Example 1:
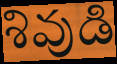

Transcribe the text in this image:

శివుడి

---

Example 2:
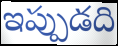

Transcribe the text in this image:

ఇప్పుడది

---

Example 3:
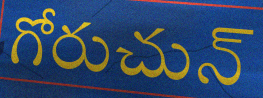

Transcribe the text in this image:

గోరుచున్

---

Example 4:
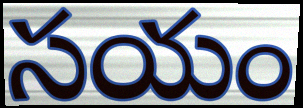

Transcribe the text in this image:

సయం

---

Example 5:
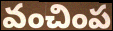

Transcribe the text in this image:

వంచింప